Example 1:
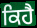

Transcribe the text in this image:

ਕਿਹੈ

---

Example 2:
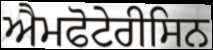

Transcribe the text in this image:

ਐਮਫੋਟੇਰੀਸਿਨ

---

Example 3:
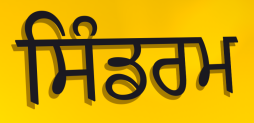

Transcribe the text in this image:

ਸਿੰਡਰਮ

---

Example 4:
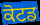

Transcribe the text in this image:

ਕੋਟਡ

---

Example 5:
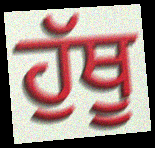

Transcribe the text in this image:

ਹੁੱਥੂ